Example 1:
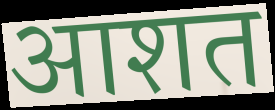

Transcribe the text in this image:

आशत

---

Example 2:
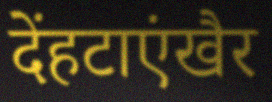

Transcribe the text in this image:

देंहटाएंखैर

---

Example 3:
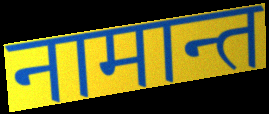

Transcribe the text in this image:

नामान्त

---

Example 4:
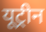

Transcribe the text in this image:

यूट्रीन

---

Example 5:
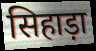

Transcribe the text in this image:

सिहाड़ा